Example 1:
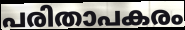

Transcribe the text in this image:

പരിതാപകരം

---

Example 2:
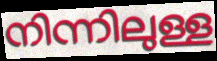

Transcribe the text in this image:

നിന്നിലുള്ള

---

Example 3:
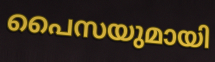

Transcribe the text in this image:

പൈസയുമായി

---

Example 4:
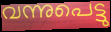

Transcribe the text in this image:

വന്നുപെട്ടു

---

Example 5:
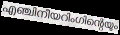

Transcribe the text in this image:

എഞ്ചിനീയറിംഗിന്റെയും